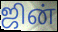
ஜின்